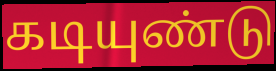
கடியுண்டு